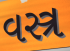
વસ્ત્ર